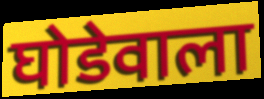
घोडेवाला